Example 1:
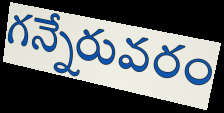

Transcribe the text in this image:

గన్నేరువరం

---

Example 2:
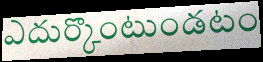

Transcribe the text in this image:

ఎదుర్కొంటుండటం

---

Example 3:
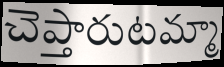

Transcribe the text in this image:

చెప్తారుటమ్మా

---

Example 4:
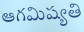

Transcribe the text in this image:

ఆగమిష్యతి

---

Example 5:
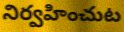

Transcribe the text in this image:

నిర్వహించుట